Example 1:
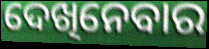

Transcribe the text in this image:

ଦେଖିନେବାର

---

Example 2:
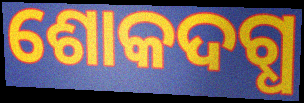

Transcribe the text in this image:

ଶୋକଦଗ୍ଧ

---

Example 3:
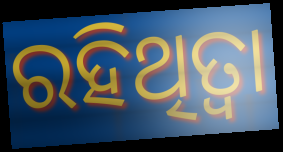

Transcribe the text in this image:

ରହିଥିତ୍ବା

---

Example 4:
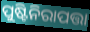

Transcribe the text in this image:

ପୁଷ୍ଟିନିରାପତ୍ତା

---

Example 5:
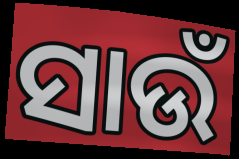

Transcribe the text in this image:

ସାଉଁ